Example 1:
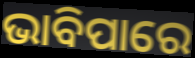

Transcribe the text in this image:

ଭାବିପାରେ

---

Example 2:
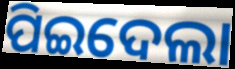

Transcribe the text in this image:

ପିଇଦେଲା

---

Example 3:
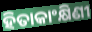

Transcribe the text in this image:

ହିତାକାଂକ୍ଷିଣୀ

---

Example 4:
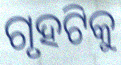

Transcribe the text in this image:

ଗୃହଟିକୁ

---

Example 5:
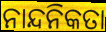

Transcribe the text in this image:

ନାନ୍ଦନିକତା